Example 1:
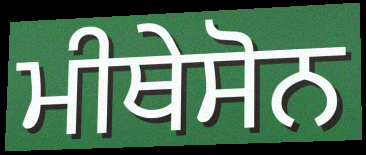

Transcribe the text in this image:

ਮੀਥੇਸੋਨ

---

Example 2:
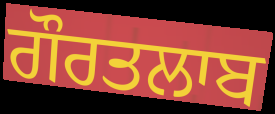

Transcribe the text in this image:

ਗੌਰਤਲਾਬ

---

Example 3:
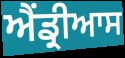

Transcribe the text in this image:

ਐਂਡ੍ਰੀਆਸ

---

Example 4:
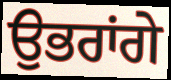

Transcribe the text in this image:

ਉਭਰਾਂਗੇ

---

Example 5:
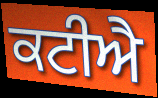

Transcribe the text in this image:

ਕਟੀਐ